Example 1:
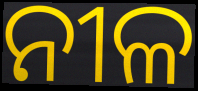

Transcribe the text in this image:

ନୀଳ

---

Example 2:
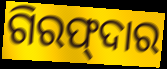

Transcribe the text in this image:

ଗିରଫ୍‍ଦାର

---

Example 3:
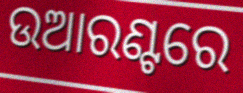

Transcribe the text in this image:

ଉଆରଣ୍ଟରେ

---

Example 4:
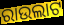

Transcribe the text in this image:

ରାଉଲାଟ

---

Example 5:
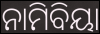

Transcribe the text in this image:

ନାମିବିୟା